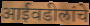
आईवडीलांचे